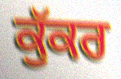
ਕੁੱਕਰ